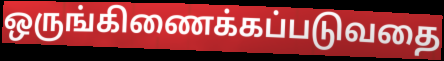
ஒருங்கிணைக்கப்படுவதை